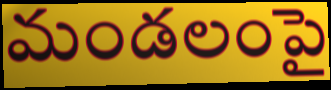
మండలంపై